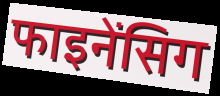
फाइनेंसिग